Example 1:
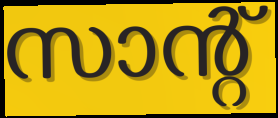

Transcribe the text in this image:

സാന്റ്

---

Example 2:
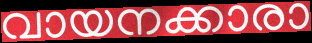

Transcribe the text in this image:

വായനക്കാരാ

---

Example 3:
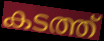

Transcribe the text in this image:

കടത്ത്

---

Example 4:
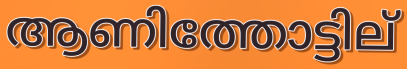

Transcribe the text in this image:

ആണിത്തോട്ടില്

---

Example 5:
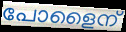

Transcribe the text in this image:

പോളൈന്